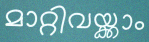
മാറ്റിവയ്ക്കാം